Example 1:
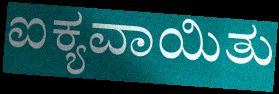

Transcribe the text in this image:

ಐಕ್ಯವಾಯಿತು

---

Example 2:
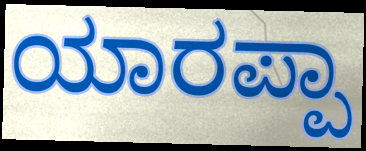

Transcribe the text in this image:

ಯಾರಪ್ಪಾ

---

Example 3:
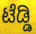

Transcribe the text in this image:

ಟೆಡ್ಡಿ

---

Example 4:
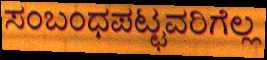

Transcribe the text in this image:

ಸಂಬಂಧಪಟ್ಟವರಿಗೆಲ್ಲ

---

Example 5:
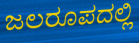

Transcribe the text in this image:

ಜಲರೂಪದಲ್ಲಿ